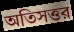
অতিসত্তর